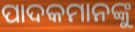
ପାଦକମାନଙ୍କୁ